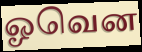
ஓவென